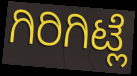
ಗಿರಿಗಿಟ್ಲೆ